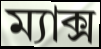
ম্যাক্স